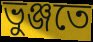
ভুঞ্জতে